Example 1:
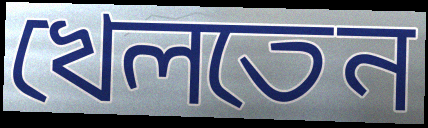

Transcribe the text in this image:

খেলতেন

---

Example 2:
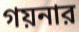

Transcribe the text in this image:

গয়নার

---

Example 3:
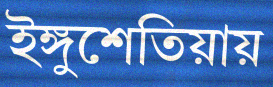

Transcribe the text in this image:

ইঙ্গুশেতিয়ায়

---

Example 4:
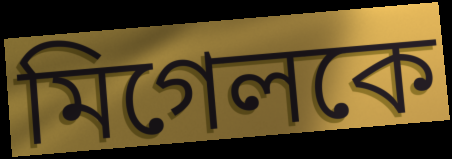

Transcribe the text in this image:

মিগেলকে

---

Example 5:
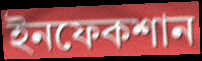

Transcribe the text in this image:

ইনফেকশান